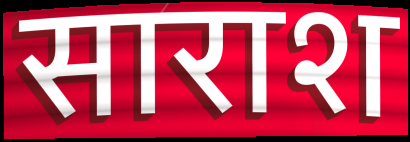
साराश